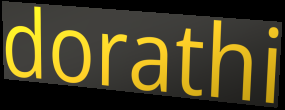
dorathi